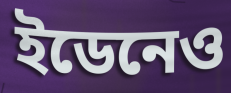
ইডেনেও